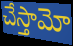
చేస్తామో